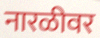
नारळीवर